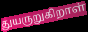
துயருறுகிறாள்